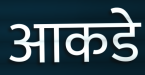
आकडे